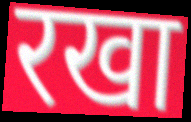
रखा